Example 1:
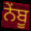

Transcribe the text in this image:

ਨੇਂਬੂ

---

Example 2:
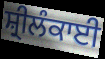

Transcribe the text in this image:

ਸ਼੍ਰੀਲੰਕਾਈ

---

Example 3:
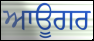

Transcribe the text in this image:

ਆਊਗਰ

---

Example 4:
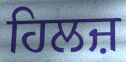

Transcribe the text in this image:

ਹਿਲਜ਼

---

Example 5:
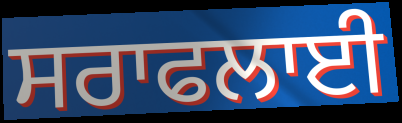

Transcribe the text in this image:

ਸਰਾਫਲਾਈ